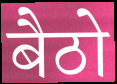
बैठो